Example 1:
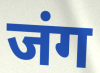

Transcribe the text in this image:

जंग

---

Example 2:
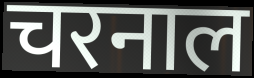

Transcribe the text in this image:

चरनाल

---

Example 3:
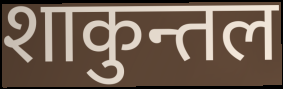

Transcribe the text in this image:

शाकुन्तल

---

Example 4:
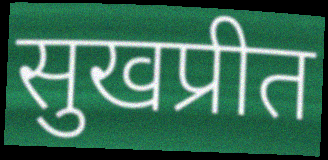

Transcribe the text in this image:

सुखप्रीत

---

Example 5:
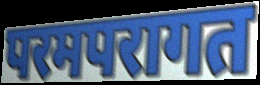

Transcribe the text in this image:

परमपरागत